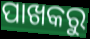
ପାଖକରୁ